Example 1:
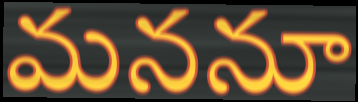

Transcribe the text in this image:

మననూ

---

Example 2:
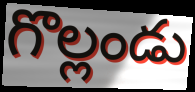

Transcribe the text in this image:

గొల్లండు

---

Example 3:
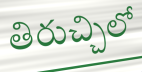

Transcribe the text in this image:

తిరుచ్చిలో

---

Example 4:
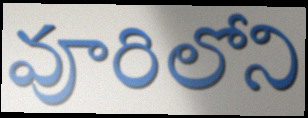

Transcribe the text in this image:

వూరిలోని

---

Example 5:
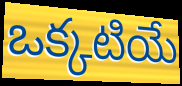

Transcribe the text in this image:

ఒక్కటియే